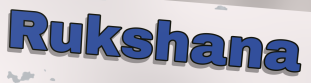
Rukshana